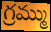
గ్రమ్ము